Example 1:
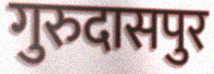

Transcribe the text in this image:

गुरुदासपुर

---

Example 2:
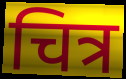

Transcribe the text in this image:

चित्र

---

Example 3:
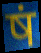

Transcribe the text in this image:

षं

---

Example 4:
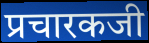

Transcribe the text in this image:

प्रचारकजी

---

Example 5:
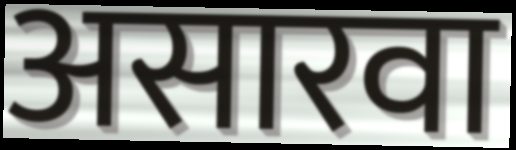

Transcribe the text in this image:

असारवा